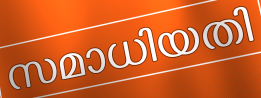
സമാധിയതി